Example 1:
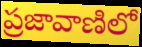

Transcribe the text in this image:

ప్రజావాణిలో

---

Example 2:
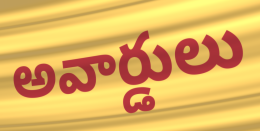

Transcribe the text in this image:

అవార్డులు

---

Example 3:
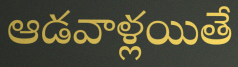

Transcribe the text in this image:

ఆడవాళ్లయితే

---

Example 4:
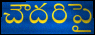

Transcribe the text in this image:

చౌదరిపై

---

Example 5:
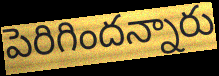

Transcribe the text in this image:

పెరిగిందన్నారు